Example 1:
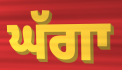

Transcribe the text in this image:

ਘੱਗਾ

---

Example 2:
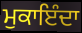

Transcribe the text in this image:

ਮੁਕਾਇੰਦਾ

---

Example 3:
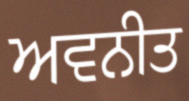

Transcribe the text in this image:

ਅਵਨੀਤ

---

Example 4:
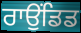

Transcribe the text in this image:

ਰਾਉਂਡਿਡ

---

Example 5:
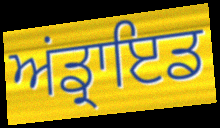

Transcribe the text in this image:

ਅਂਡ੍ਰਾਇਡ